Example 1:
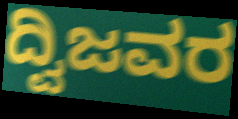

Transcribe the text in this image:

ದ್ವಿಜವರ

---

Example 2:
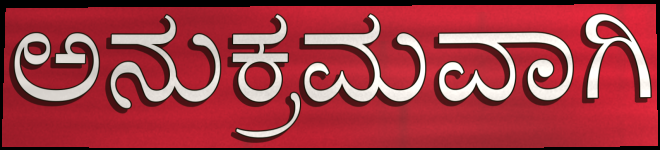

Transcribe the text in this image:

ಅನುಕ್ರಮವಾಗಿ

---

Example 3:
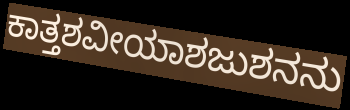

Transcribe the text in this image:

ಕಾತ್ತಶವೀಯಾಶಜುಶನನು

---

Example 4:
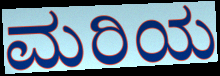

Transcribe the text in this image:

ಮರಿಯ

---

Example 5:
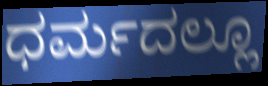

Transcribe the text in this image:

ಧರ್ಮದಲ್ಲೂ